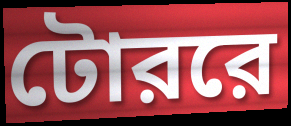
টোররে